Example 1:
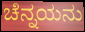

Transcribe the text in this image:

ಚೆನ್ನಯನು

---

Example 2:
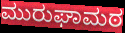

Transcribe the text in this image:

ಮುರುಘಾಮಠ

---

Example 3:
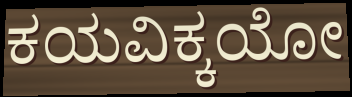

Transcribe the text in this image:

ಕಯವಿಕ್ಕಯೋ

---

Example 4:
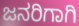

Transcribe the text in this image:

ಜನರಿಗಾಗಿ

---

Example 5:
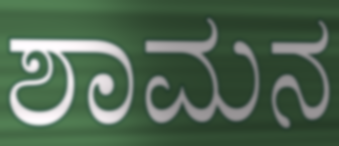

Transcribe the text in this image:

ಶಾಮನ